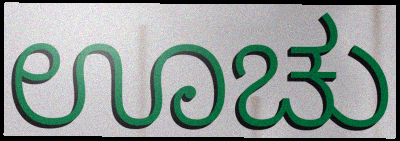
ಊಚು